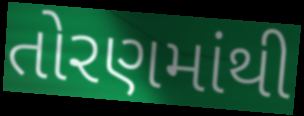
તોરણમાંથી